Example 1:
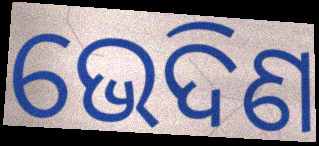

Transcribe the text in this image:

ଭେଦିଣ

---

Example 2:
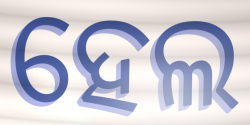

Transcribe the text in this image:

ହେଲ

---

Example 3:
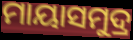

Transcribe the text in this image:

ମାୟାସମୁଦ୍ର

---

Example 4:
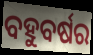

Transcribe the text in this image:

ବହୁବର୍ଷର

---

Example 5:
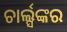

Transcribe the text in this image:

ଚାର୍ଲ୍ସଙ୍କର